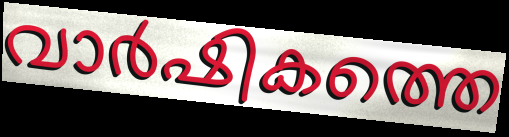
വാർഷികത്തെ